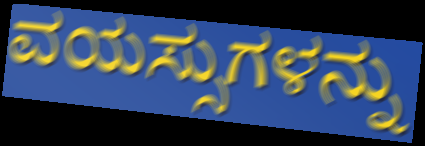
ವಯಸ್ಸುಗಳನ್ನು